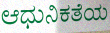
ಆಧುನಿಕತೆಯ